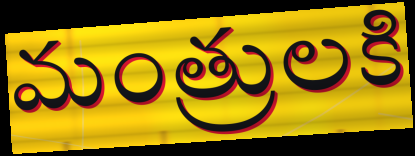
మంత్రులకి